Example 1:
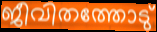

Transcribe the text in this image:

ജീവിതത്തോടു്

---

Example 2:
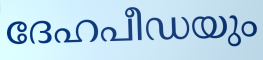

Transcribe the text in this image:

ദേഹപീഡയും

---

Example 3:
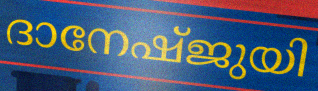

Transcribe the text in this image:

ദാനേഷ്ജുയി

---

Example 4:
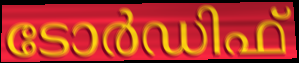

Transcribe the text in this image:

ടോർഡിഫ്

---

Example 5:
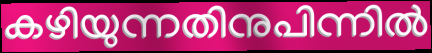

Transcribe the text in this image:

കഴിയുന്നതിനുപിന്നിൽ